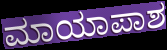
ಮಾಯಾಪಾಶ